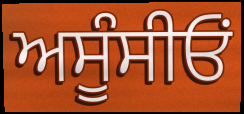
ਅਸੂੰਸੀਓਂ